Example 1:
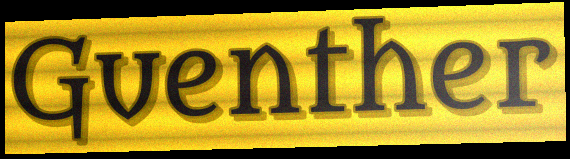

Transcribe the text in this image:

Guenther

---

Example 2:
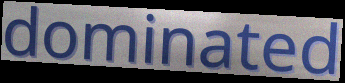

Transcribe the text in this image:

dominated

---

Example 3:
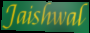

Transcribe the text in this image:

Jaishwal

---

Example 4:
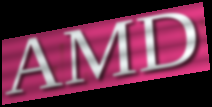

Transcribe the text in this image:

AMD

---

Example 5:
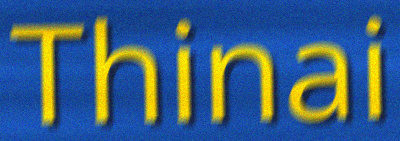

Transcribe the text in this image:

Thinai